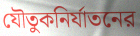
যৌতুকনির্যাতনের